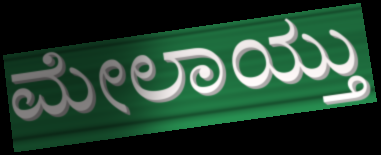
ಮೇಲಾಯ್ತು